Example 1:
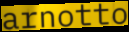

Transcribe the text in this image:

arnotto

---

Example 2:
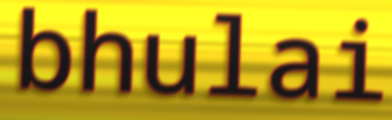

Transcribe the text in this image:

bhulai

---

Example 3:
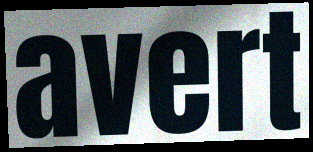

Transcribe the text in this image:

avert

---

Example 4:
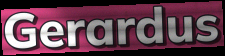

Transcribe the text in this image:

Gerardus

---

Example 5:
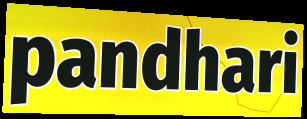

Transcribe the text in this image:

pandhari